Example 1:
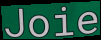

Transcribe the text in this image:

Joie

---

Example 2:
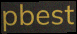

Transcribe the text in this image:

pbest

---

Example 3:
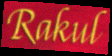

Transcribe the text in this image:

Rakul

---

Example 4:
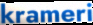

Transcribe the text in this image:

krameri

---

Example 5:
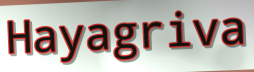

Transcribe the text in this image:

Hayagriva